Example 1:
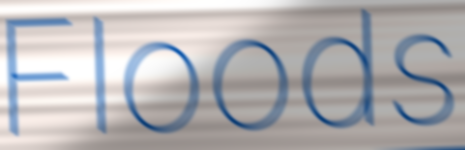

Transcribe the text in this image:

Floods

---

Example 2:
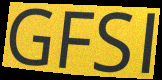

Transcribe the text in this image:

GFSI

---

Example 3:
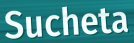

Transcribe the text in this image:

Sucheta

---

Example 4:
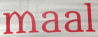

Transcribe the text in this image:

maal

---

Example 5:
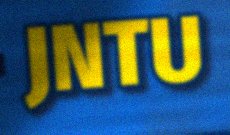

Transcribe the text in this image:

JNTU